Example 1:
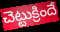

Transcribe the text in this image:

చెట్టుక్రిందే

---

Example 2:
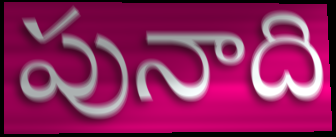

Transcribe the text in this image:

పునాది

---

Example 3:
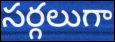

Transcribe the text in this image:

సర్గలుగా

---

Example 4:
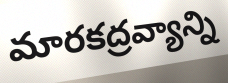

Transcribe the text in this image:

మారకద్రవ్యాన్ని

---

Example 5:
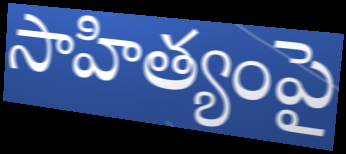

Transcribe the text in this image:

సాహిత్యంపై